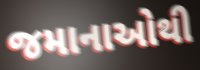
જમાનાઓથી